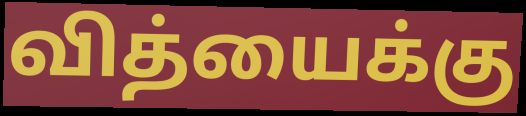
வித்யைக்கு